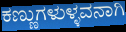
ಕಣ್ಣುಗಳುಳ್ಳವನಾಗಿ